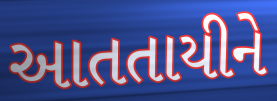
આતતાયીને